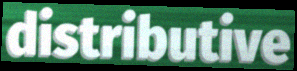
distributive